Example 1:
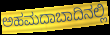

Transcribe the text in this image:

ಅಹಮದಾಬಾದಿನಲ್ಲಿ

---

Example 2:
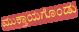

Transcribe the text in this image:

ಮುಕ್ತಾಯಗೊಂಡು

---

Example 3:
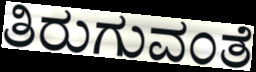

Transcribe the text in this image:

ತಿರುಗುವಂತೆ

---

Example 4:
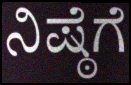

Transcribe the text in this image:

ನಿಷ್ಠೆಗೆ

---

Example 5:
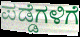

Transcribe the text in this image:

ಪಡ್ಡೆಗಳಿಗೆ